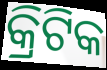
କ୍ରିଟିକ